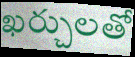
ఖర్చులతో